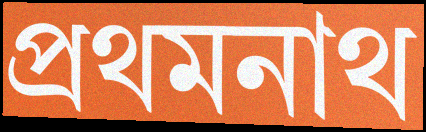
প্রথমনাথ